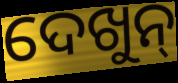
ଦେଖୁନ୍